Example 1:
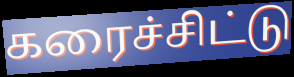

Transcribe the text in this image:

கரைச்சிட்டு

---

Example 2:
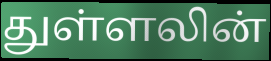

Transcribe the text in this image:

துள்ளலின்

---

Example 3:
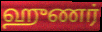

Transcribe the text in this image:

ஹுணர்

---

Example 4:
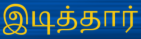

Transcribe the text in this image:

இடித்தார்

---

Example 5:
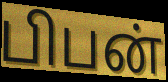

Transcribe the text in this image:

பிபன்